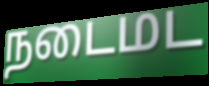
நடைமட